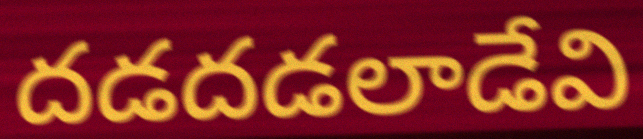
దడదడలాడేవి